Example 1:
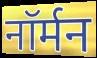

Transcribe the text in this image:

नॉर्मन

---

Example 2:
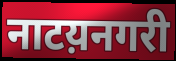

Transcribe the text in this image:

नाटय़नगरी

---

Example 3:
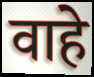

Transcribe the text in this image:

वाहे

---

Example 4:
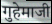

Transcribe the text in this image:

गुहेमाजी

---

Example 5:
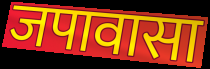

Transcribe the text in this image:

जपावासा